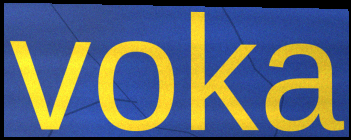
voka